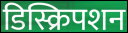
डिस्क्रिपशन